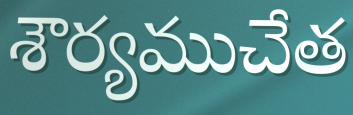
శౌర్యముచేత